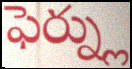
ఫెర్న్లు